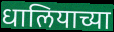
धालियाच्या